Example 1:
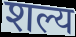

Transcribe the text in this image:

शल्‍य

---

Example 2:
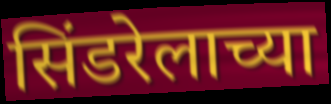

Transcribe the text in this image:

सिंडरेलाच्या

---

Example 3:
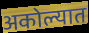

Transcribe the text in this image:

अकोल्यात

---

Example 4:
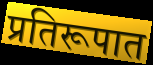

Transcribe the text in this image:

प्रतिरूपात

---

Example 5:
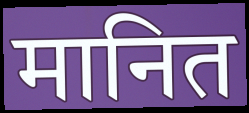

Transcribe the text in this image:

मानित